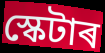
স্কেটাৰ